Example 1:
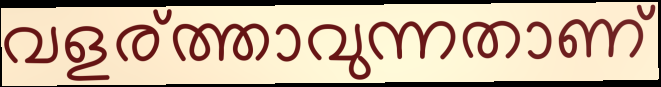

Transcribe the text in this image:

വളര്ത്താവുന്നതാണ്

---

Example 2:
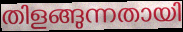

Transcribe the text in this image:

തിളങ്ങുന്നതായി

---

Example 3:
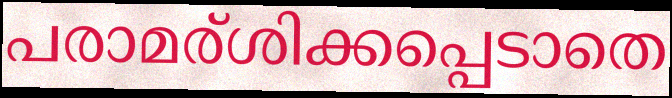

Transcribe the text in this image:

പരാമര്ശിക്കപ്പെടാതെ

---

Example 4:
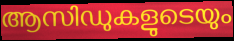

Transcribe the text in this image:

ആസിഡുകളുടെയും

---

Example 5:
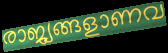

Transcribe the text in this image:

രാജ്യങ്ങളാണവ